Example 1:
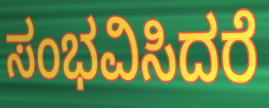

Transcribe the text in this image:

ಸಂಭವಿಸಿದರೆ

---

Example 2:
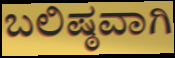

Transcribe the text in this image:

ಬಲಿಷ್ಠವಾಗಿ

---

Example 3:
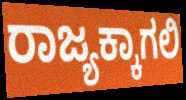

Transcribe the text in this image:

ರಾಜ್ಯಕ್ಕಾಗಲಿ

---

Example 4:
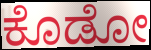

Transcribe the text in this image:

ಕೊಡೋ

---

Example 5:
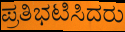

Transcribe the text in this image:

ಪ್ರತಿಭಟಿಸಿದರು